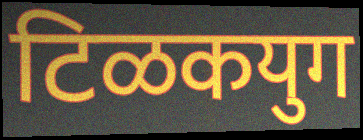
टिळकयुग